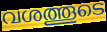
വശത്തൂടെ